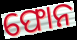
ଫୋନ